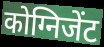
कोग्निजेंट